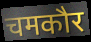
चमकौर